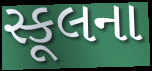
સ્કૂલના